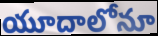
యూదాలోనూ